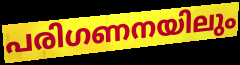
പരിഗണനയിലും